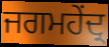
ਜਗਮਹੇਂਦ੍ਰ